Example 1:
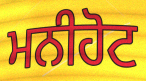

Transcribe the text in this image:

ਮਨੀਹੋਟ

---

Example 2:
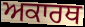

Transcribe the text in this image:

ਅਕਾਰਥ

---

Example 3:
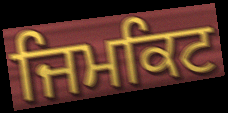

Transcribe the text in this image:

ਜਿਮਕਿਟ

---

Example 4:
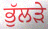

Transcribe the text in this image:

ਭੁੱਲੜੇ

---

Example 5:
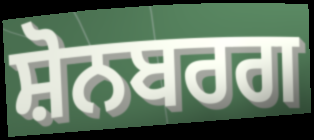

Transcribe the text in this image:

ਸ਼ੋਨਬਰਗ